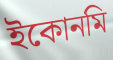
ইকোনমি